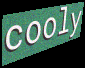
cooly